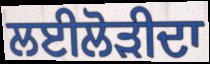
ਲਈਲੋੜੀਦਾ